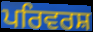
ਪਰਿਵਰਸ਼